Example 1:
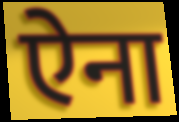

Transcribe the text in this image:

ऐना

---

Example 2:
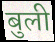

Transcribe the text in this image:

बुली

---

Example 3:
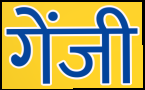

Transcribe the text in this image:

गेंजी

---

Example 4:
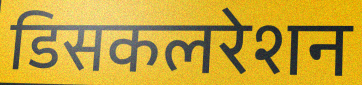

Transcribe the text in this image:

डिसकलरेशन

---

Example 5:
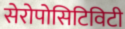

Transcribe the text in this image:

सेरोपोसिटिविटी